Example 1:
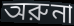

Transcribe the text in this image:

অরুনা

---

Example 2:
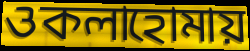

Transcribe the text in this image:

ওকলাহোমায়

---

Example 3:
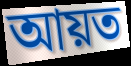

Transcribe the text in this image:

আয়ত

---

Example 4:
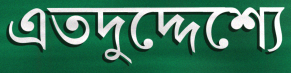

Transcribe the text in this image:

এতদুদ্দেশ্যে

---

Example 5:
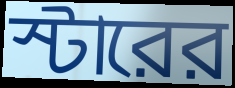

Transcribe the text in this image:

স্টারের